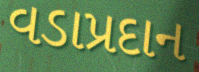
વડાપ્રદાન